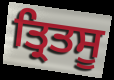
ਤ੍ਰਿਤਸੂ